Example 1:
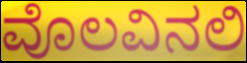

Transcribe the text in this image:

ವೊಲವಿನಲಿ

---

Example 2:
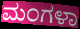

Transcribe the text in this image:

ಮಂಗಳಾ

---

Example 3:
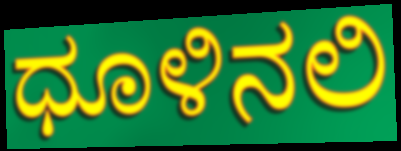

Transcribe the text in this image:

ಧೂಳಿನಲಿ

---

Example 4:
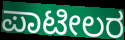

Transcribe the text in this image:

ಪಾಟೀಲರ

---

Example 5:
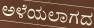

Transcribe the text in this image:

ಅಳೆಯಲಾಗದ